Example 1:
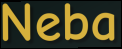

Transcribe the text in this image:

Neba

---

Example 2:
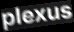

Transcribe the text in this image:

plexus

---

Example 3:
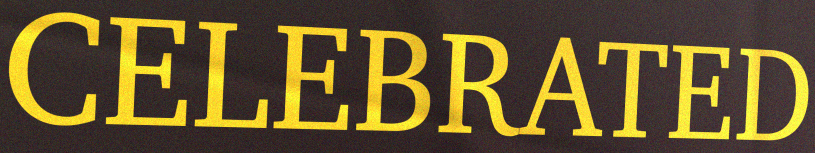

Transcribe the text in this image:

CELEBRATED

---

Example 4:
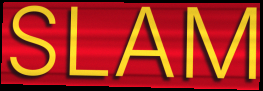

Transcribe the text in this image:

SLAM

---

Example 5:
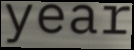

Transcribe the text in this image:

year